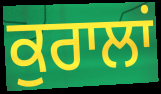
ਕੁਰਾਲਾਂ